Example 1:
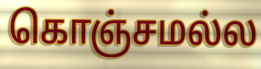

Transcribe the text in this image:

கொஞ்சமல்ல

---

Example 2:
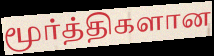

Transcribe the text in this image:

மூர்த்திகளான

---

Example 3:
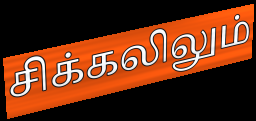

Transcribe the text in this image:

சிக்கலிலும்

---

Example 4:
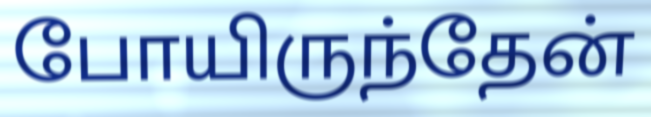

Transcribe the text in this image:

போயிருந்தேன்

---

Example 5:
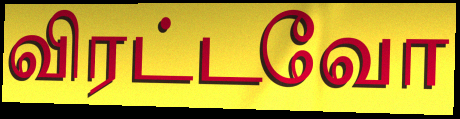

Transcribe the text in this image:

விரட்டவோ